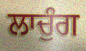
ਲਾਚੁੰਗ